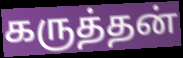
கருத்தன்